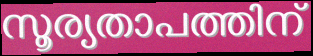
സൂര്യതാപത്തിന്